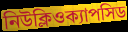
নিউক্লিওক্যাপসিড